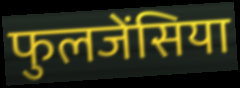
फुलजेंसिया